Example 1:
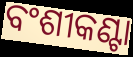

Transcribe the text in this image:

ବଂଶୀକଣ୍ଟା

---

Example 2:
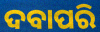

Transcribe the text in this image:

ଦବାପରି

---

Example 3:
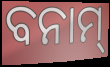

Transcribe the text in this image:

ବନାମ୍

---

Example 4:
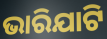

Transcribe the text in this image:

ଭାରିଯାଟି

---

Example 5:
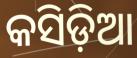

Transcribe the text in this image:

କସିଡ଼ିଆ